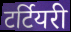
टर्टियरी